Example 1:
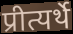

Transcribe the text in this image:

प्रीत्यर्थे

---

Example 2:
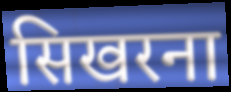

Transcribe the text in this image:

सिखरना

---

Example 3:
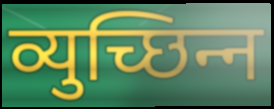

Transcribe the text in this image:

व्युच्छिन्न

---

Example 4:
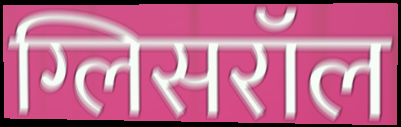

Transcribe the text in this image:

ग्लिसरॉल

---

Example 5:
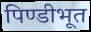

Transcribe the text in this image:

पिण्डीभूत